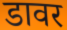
डावर